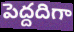
పెద్దదిగా